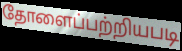
தோளைப்பற்றியபடி